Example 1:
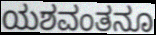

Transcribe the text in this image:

ಯಶವಂತನೂ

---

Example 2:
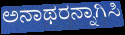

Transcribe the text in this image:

ಅನಾಥರನ್ನಾಗಿಸಿ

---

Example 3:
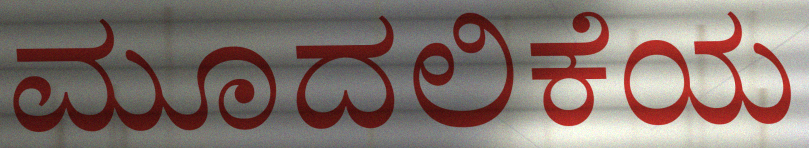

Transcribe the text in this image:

ಮೂದಲಿಕೆಯ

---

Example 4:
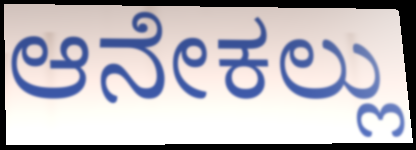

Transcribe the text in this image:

ಆನೇಕಲ್ಲು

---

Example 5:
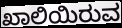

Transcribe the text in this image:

ಖಾಲಿಯಿರುವ